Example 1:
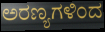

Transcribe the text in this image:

ಅರಣ್ಯಗಳಿಂದ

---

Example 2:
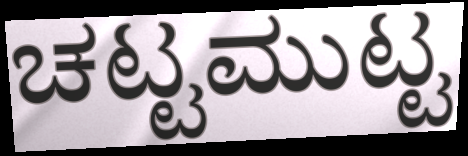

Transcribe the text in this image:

ಚಟ್ಟಮುಟ್ಟ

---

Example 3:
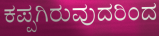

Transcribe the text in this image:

ಕಪ್ಪಗಿರುವುದರಿಂದ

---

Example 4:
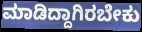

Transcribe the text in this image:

ಮಾಡಿದ್ದಾಗಿರಬೇಕು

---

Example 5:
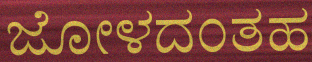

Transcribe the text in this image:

ಜೋಳದಂತಹ